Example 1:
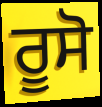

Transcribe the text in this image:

ਰੂਸੋ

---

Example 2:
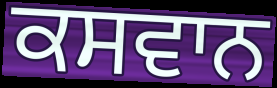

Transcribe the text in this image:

ਕਸਵਾਨ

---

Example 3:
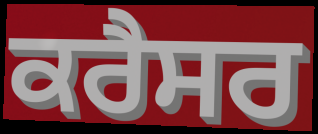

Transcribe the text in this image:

ਕਰੈਸਰ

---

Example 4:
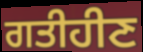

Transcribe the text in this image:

ਗਤੀਹੀਣ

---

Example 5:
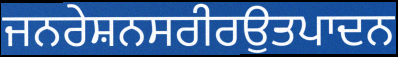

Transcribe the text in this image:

ਜਨਰੇਸ਼ਨਸਰੀਰਉਤਪਾਦਨ